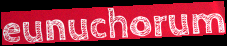
eunuchorum